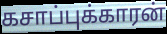
கசாப்புக்காரன்